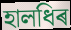
হালধিৰ